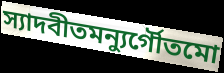
স্যাদবীতমন্যুর্গৌতমো